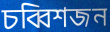
চব্বিশজন